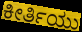
ಕೀರ್ತಿಯು